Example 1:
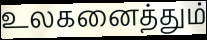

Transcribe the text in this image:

உலகனைத்தும்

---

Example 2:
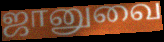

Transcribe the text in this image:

ஜானுவை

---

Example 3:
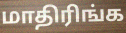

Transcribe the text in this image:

மாதிரிங்க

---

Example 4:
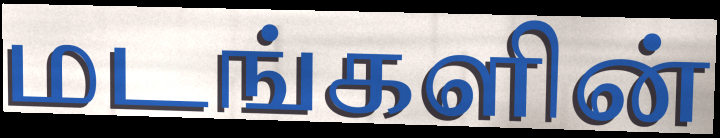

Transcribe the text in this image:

மடங்களின்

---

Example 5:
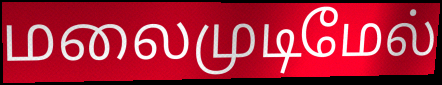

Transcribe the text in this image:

மலைமுடிமேல்